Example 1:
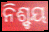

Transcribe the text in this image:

ନିଶ୍ୱ୍ଚୟ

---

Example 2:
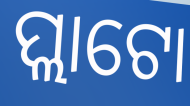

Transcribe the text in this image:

ପ୍ଲାଟୋ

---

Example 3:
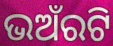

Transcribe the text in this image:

ଭଅଁରଟି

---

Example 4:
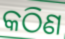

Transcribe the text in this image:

କଠିଣ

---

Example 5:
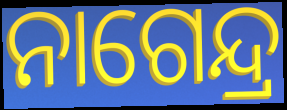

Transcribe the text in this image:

ନାଗେନ୍ଦ୍ର